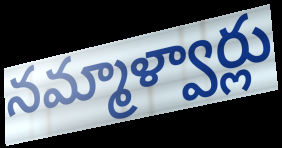
నమ్మాళ్వార్లు